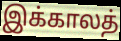
இக்காலத்